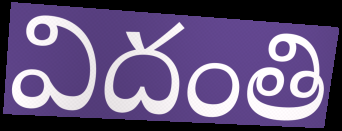
విదంతి